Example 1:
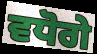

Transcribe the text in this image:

ਵਧੋਗੇ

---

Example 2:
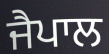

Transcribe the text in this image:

ਜੈਪਾਲ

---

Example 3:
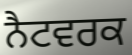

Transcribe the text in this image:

ਨੈਟਵਰਕ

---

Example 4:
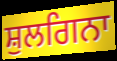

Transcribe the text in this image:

ਸ਼ੁਲਗਿਨਾ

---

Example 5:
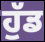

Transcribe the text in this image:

ਹੁੱਡ